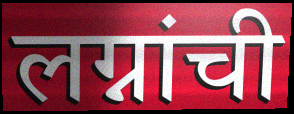
लग्नांची